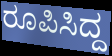
ರೂಪಿಸಿದ್ದ